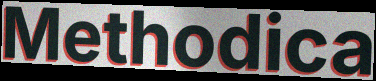
Methodica